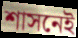
শাসনেই